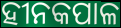
ହୀନକପାଳ